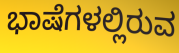
ಭಾಷೆಗಳಲ್ಲಿರುವ